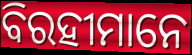
ବିରହୀମାନେ